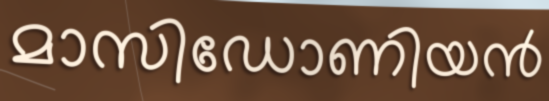
മാസിഡോണിയൻ